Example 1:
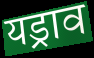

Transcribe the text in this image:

यड्राव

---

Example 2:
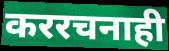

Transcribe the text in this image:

कररचनाही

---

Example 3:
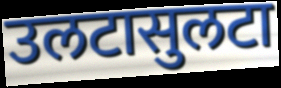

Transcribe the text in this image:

उलटासुलटा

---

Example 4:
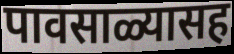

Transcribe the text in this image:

पावसाळ्यासह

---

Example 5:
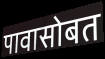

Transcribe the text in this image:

पावासोबत